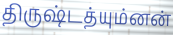
திருஷ்டத்யும்னன்